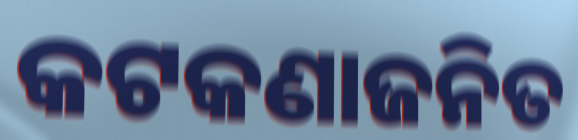
କଟକଣାଜନିତ